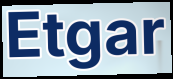
Etgar